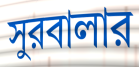
সুরবালার